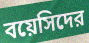
বয়েসিদের